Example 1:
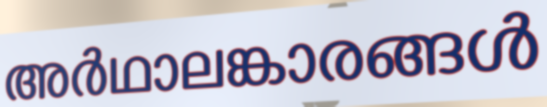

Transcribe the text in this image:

അർഥാലങ്കാരങ്ങൾ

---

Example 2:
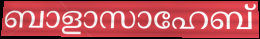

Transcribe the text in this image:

ബാളാസാഹേബ്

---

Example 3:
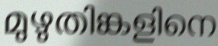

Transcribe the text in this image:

മുഴുതിങ്കളിനെ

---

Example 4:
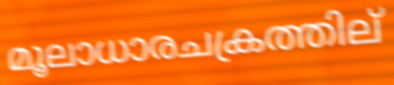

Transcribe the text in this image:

മൂലാധാരചക്രത്തില്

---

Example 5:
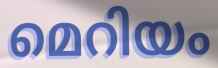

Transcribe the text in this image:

മെറിയം